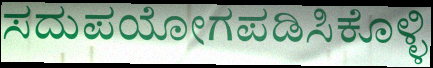
ಸದುಪಯೋಗಪಡಿಸಿಕೊಳ್ಳಿ